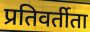
प्रतिवर्तीता